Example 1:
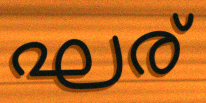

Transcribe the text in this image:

ഘര്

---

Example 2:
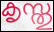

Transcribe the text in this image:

കൃസ്തു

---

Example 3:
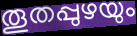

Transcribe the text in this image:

തൂതപ്പുഴയും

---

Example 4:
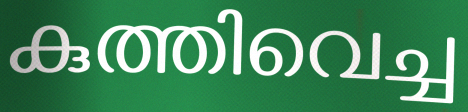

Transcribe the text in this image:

കുത്തിവെച്ച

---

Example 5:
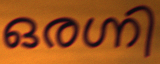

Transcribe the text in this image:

ഒരഗ്നി